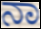
ನಾ